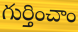
గుర్తించాం